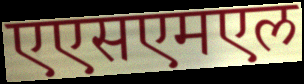
एएसएमएल